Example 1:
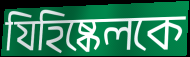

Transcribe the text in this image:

যিহিষ্কেলকে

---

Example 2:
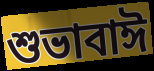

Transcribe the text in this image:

শুভাবাঈ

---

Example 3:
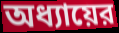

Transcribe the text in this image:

অধ্যায়ের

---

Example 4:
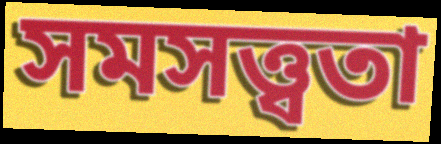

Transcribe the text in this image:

সমসত্ত্বতা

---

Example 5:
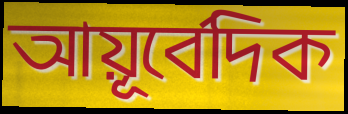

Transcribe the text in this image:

আয়ূর্বেদিক